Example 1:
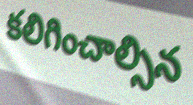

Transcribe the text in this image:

కలిగించాల్సిన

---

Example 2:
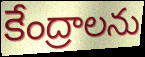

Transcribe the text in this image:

కేంద్రాలను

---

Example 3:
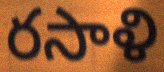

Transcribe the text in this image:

రసాళి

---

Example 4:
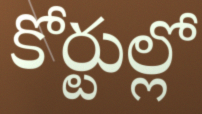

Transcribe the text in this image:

కోర్టుల్లో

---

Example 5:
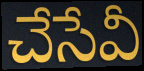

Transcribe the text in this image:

చేసేవీ